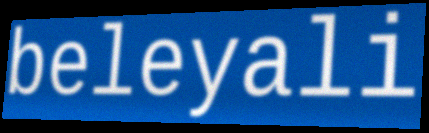
beleyali